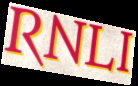
RNLI